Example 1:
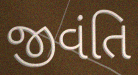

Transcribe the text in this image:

જીવંતિ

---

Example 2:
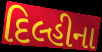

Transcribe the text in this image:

દિલ્હીના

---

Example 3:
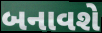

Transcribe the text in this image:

બનાવશે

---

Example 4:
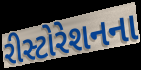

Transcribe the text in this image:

રીસ્ટોરેશનના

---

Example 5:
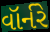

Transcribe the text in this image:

વૉર્નરે